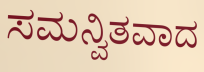
ಸಮನ್ವಿತವಾದ